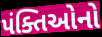
પંક્તિઓનો